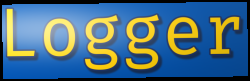
Logger